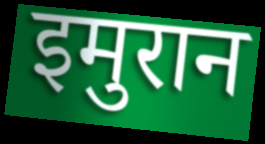
इमुरान